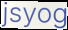
jsyog